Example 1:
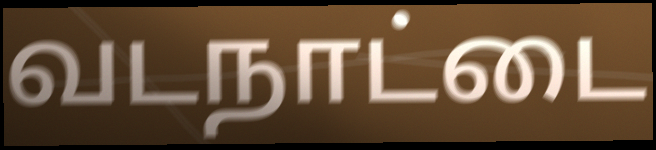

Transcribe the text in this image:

வடநாட்டை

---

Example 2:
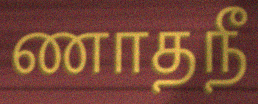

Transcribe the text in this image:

ணாதநீ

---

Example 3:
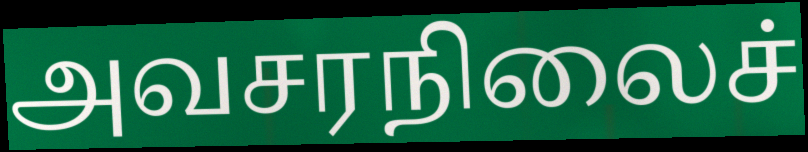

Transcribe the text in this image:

அவசரநிலைச்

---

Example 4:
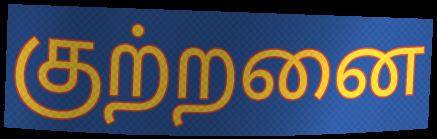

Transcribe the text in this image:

குற்றனை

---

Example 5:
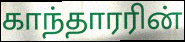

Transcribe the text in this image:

காந்தாரரின்